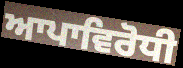
ਆਪਾਵਿਰੋਧੀ